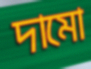
দামো